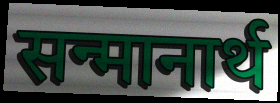
सन्मानार्थ